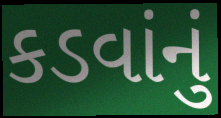
કડવાંનું